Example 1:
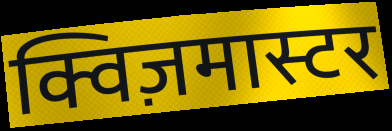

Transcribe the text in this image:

क्विज़मास्टर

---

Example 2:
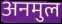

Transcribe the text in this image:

अनमुल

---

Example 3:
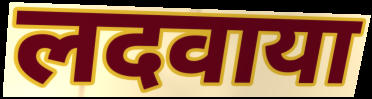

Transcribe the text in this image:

लदवाया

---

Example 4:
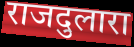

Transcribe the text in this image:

राजदुलारा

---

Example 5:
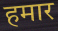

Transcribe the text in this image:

हमार